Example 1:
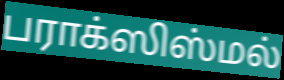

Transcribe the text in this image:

பராக்ஸிஸ்மல்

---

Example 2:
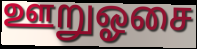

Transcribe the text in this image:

ஊறுஓசை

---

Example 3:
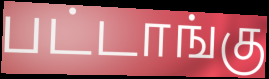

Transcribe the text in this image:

பட்டாங்கு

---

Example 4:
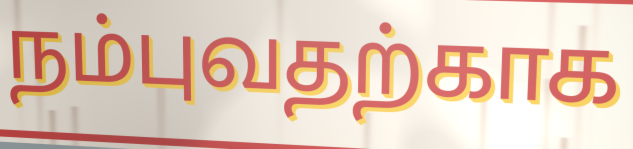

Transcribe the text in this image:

நம்புவதற்காக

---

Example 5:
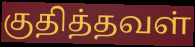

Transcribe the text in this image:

குதித்தவள்